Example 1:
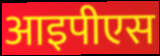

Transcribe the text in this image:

आइपीएस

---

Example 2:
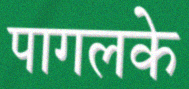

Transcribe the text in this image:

पागलके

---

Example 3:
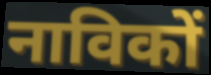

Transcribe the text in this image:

नाविकों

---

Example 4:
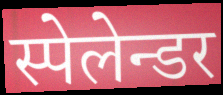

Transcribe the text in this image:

स्पेलेन्डर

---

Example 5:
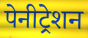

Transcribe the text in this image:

पेनीट्रेशन